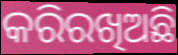
କରିରଖିଅଛି